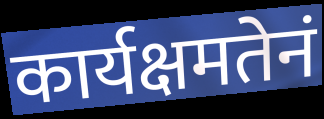
कार्यक्षमतेनं